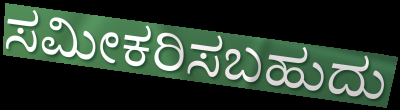
ಸಮೀಕರಿಸಬಹುದು